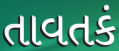
તાવતકં